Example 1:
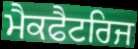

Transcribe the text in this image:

ਮੈਕਫੈਟਰਿਜ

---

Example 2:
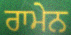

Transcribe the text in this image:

ਰਾਮੇਨ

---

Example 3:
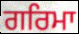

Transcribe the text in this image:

ਗਰਿਮਾ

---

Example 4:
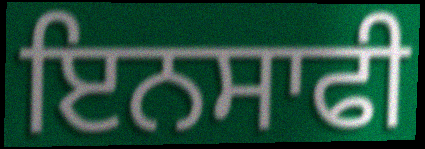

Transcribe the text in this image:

ਇਨਸਾਫੀ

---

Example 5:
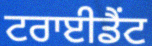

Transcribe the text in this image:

ਟਰਾਈਡੈਂਟ